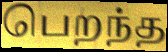
பெறந்த